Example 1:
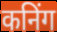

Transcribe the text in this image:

कनिंग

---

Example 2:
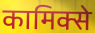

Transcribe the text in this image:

कामिक्से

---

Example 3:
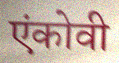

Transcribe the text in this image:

एंकोवी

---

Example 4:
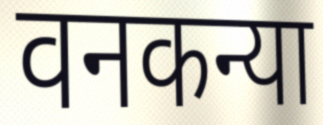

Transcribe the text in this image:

वनकन्या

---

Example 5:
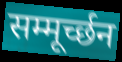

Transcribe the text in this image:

सम्मूर्च्छन